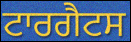
ਟਾਰਗੈਟਸ